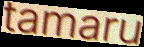
tamaru